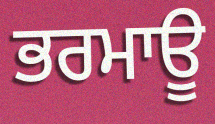
ਭਰਮਾਊ